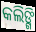
କଲିଙ୍ଗି